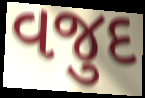
વજુદ